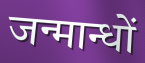
जन्मान्धों